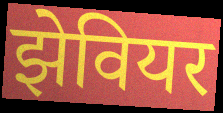
झेवियर